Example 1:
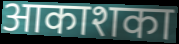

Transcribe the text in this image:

आकाशका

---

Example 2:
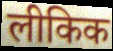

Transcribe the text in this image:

लीकिक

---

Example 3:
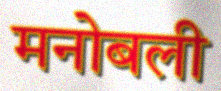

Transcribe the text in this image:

मनोबली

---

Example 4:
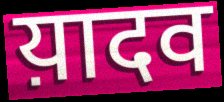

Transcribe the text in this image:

य़ादव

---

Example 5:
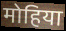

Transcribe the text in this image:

मोहिया